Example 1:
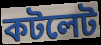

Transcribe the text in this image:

কটলেট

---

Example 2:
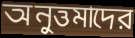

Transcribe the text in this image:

অনুত্তমাদের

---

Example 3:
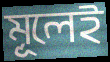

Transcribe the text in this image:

মূলেই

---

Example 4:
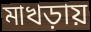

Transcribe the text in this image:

মাখড়ায়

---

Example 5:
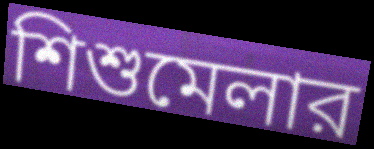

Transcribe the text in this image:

শিশুমেলার